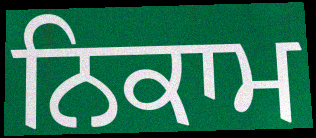
ਨਿਕਾਮ